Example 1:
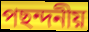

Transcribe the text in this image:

পছন্দনীয়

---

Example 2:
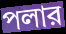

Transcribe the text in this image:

পলার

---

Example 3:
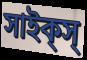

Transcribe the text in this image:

সাইক্‌স্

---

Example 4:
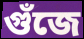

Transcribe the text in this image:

গুঁজে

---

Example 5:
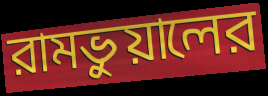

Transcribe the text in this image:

রামভুয়ালের